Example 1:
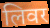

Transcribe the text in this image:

लिवर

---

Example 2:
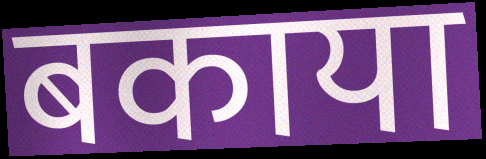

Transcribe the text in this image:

बकाया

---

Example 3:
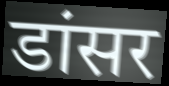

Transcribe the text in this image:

डांसर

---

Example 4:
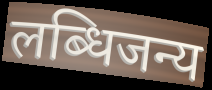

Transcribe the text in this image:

लब्धिजन्य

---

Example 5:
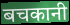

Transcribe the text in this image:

बचकानी